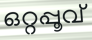
ഒറ്റപ്പൂവ്